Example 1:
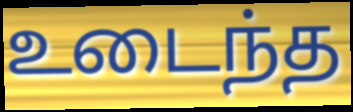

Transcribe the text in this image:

உடைந்த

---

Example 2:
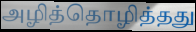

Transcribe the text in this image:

அழித்தொழித்தது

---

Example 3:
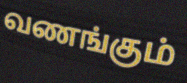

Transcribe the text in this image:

வணங்கும்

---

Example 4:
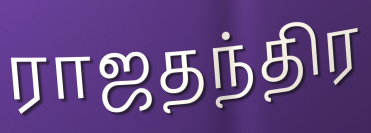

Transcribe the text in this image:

ராஜதந்திர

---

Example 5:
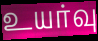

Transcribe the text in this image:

உயர்வு